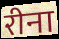
रीना